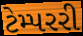
ટેમ્પરરી